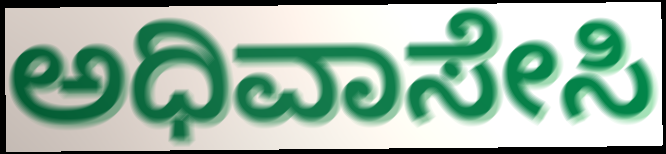
ಅಧಿವಾಸೇಸಿ